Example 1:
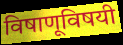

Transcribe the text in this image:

विषाणूविषयी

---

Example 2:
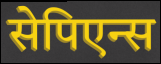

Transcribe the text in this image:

सेपिएन्स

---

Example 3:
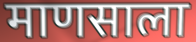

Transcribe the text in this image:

माणसाला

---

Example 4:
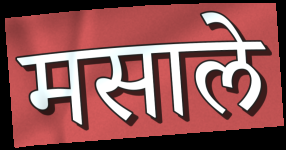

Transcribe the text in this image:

मसाले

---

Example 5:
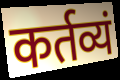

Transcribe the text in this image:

कर्तव्यं